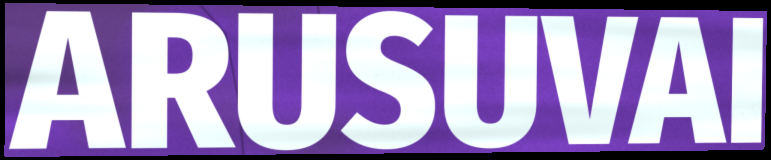
ARUSUVAI